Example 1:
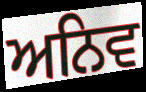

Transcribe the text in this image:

ਅਨਿਵ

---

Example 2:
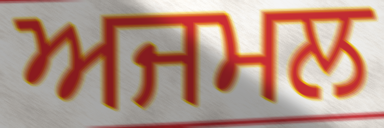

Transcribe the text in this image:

ਅਜਮਲ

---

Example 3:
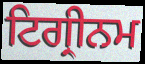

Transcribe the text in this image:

ਟਿਗ੍ਰੀਨਮ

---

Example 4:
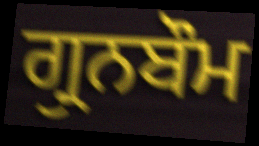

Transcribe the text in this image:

ਗ੍ਰੁਨਬੌਮ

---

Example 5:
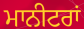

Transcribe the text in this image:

ਮਾਨੀਟਰਾਂ